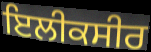
ਇਲੀਕਸੀਰ